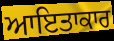
ਆਇਤਾਕਾਰ